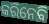
କରିନେବି